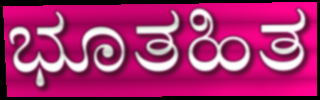
ಭೂತಹಿತ